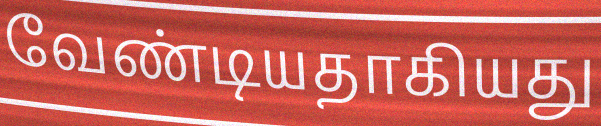
வேண்டியதாகியது